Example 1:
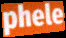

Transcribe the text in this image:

phele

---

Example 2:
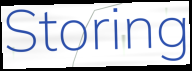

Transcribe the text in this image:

Storing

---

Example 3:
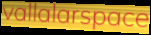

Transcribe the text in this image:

vallalarspace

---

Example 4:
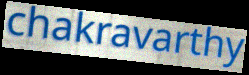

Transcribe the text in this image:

chakravarthy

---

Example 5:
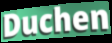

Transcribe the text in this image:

Duchen